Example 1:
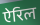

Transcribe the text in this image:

ऐरिल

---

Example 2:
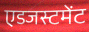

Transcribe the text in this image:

एडजस्‍टमेंट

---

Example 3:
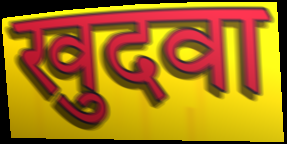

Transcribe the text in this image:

खुदवा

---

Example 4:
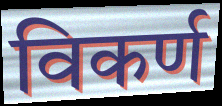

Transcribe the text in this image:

विकर्ण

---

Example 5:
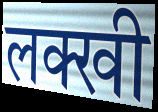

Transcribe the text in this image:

लक्खी